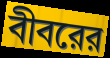
বীবরের